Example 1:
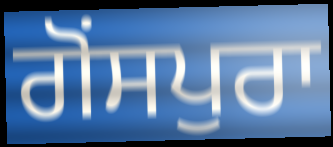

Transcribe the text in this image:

ਗੋਂਸਪੁਰਾ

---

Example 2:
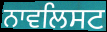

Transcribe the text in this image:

ਨਾਵਲਿਸਟ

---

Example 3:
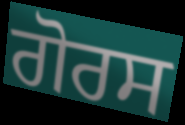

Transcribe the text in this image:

ਗੋਰਸ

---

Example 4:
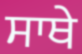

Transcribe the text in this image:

ਸਾਥੇ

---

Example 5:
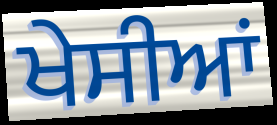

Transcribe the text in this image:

ਖੇਸੀਆਂ